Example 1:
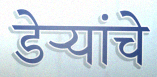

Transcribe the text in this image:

डेर्‍यांचे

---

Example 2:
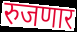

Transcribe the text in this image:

रुजणार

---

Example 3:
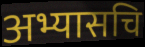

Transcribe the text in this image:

अभ्यासचि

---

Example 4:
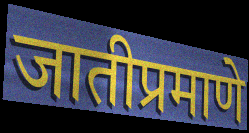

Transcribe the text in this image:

जातीप्रमाणे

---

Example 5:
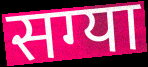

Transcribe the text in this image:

सग्या